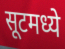
सूटमध्ये